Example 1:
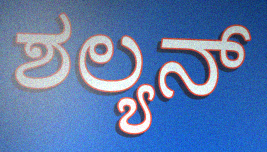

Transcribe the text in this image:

ಶಲ್ಯನ್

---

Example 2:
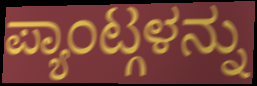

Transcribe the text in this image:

ಪ್ಯಾಂಟ್ಗಳನ್ನು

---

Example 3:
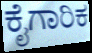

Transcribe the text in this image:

ಕೈಗಾರಿಕ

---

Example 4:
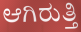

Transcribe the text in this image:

ಆಗಿರುತ್ತಿ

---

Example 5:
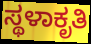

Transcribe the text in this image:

ಸ್ಥಳಾಕೃತಿ